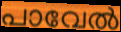
പാവേൽ